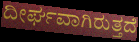
ದೀರ್ಘವಾಗಿರುತ್ತದೆ